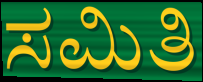
ಸಮಿತಿ